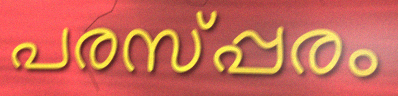
പരസ്പ്പരം